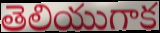
తెలియుగాక